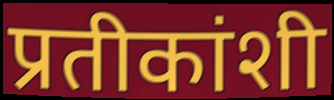
प्रतीकांशी